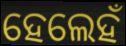
ହେଲେହଁ